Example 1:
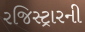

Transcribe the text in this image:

રજિસ્ટ્રારની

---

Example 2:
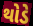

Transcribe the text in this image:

થોડે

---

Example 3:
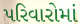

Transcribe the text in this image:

પરિવારોમાં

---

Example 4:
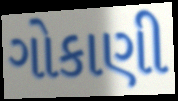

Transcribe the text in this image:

ગોકાણી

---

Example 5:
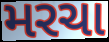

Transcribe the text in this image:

મરચા